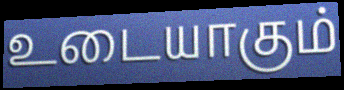
உடையாகும்